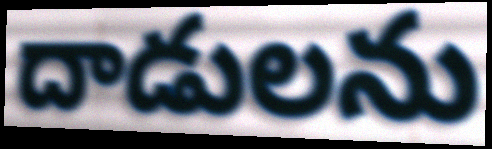
దాడులను